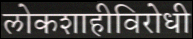
लोकशाहीविरोधी